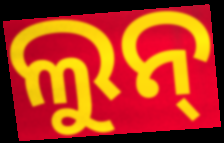
ଲୁନ୍